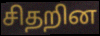
சிதறின